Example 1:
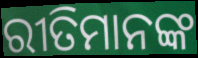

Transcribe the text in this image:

ରୀତିମାନଙ୍କ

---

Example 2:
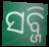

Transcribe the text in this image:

ସବ୍ଜି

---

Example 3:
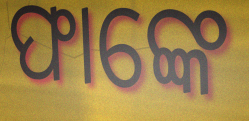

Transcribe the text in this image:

ଫାଙ୍କେ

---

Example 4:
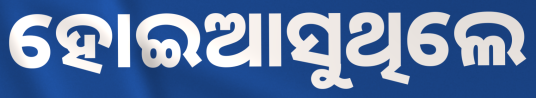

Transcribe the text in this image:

ହୋଇଆସୁଥିଲେ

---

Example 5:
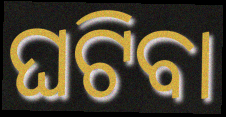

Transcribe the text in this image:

ଘଟିବା